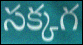
సక్కగ